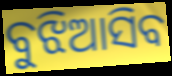
ବୁଝିଆସିବ